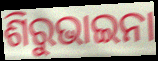
ଶିରୁଭାଇନା